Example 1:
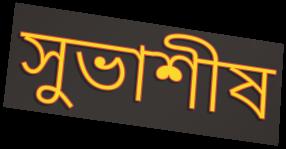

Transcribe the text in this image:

সুভাশীষ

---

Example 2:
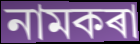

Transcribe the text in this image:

নামকৰা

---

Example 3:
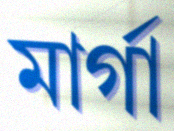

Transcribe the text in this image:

মাৰ্গা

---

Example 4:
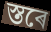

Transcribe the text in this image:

স্তৰে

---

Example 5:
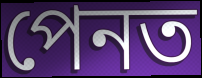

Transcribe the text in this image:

পেনত